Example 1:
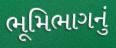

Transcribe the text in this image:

ભૂમિભાગનું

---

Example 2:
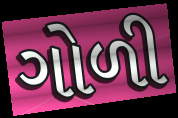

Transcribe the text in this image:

ગોળી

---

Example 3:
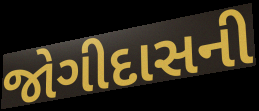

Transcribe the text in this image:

જોગીદાસની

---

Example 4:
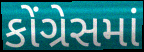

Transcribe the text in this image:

કોંગ્રેસમાં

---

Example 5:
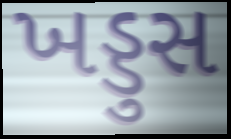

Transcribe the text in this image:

ખડ્ડુસ